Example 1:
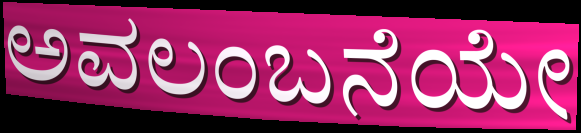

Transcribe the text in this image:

ಅವಲಂಬನೆಯೇ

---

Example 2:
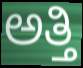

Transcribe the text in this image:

ಅತ್ತಿ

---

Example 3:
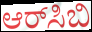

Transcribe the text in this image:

ಆರ್‌ಸಿಬಿ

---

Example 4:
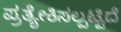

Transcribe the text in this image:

ಪ್ರತ್ಯೇಕಿಸಲ್ಪಟ್ಟಿದೆ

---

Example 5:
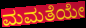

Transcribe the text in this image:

ಮಮತೆಯೇ